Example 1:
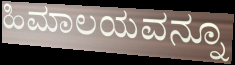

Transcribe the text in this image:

ಹಿಮಾಲಯವನ್ನೂ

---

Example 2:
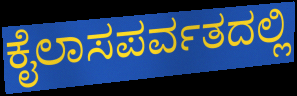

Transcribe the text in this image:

ಕೈಲಾಸಪರ್ವತದಲ್ಲಿ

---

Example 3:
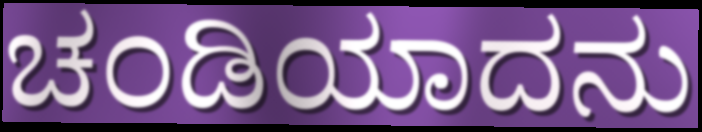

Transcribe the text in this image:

ಚಂಡಿಯಾದನು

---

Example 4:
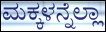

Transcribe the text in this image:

ಮಕ್ಕಳನ್ನೆಲ್ಲಾ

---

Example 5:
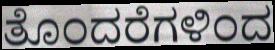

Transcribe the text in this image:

ತೊಂದರೆಗಳಿಂದ